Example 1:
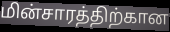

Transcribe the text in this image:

மின்சாரத்திற்கான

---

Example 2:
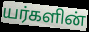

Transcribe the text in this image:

யர்களின்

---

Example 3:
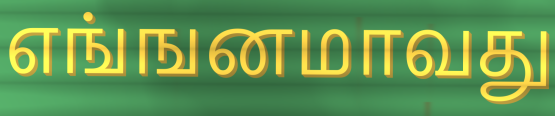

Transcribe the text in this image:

எங்ஙனமாவது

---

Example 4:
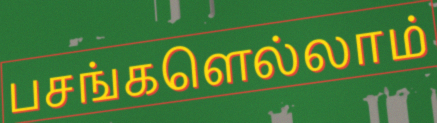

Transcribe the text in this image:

பசங்களெல்லாம்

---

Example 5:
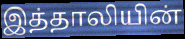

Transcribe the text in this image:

இத்தாலியின்